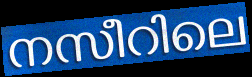
നസീറിലെ